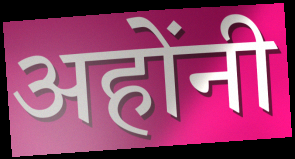
अहोंनी